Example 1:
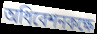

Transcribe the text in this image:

অধিবেশনকক্ষে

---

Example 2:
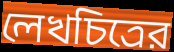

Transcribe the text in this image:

লেখচিত্রের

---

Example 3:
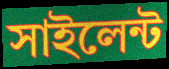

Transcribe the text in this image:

সাইলেন্ট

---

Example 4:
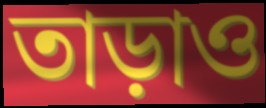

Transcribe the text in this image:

তাড়াও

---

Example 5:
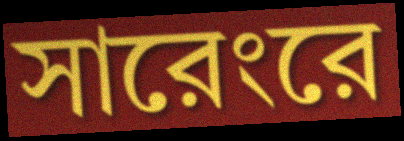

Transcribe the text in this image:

সারেংরে